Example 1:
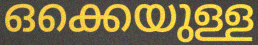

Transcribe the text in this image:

ഒക്കെയുള്ള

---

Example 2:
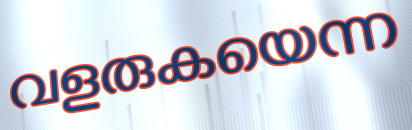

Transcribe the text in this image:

വളരുകയെന്ന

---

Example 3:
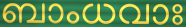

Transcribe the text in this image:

ബാംധവാഃ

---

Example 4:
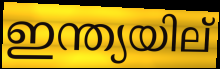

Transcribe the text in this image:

ഇന്ത്യയില്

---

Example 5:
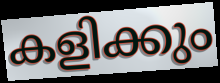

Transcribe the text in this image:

കളിക്കും